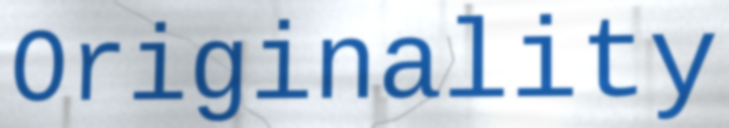
Originality